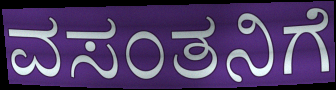
ವಸಂತನಿಗೆ